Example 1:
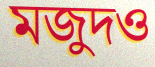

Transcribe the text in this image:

মজুদও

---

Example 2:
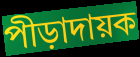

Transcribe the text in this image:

পীড়াদায়ক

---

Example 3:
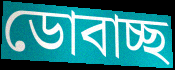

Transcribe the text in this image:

ডোবাচ্ছ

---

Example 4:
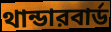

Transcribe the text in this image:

থান্ডারবার্ড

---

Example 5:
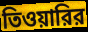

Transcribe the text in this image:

তিওয়ারির